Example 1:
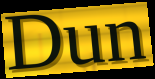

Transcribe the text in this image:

Dun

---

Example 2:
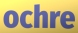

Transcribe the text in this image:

ochre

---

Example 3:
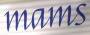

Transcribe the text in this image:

mams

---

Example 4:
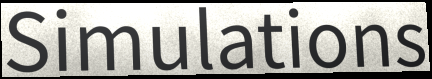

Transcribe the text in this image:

Simulations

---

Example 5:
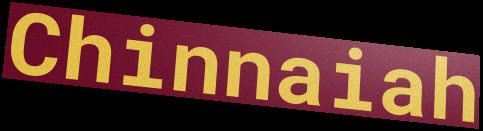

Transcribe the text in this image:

Chinnaiah